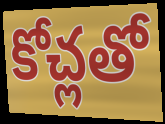
కోచ్లతో